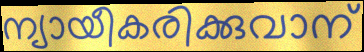
ന്യായീകരിക്കുവാന്